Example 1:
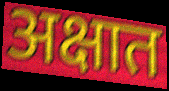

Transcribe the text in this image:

अक्षात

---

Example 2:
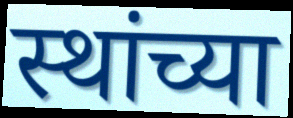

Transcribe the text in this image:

स्थांच्या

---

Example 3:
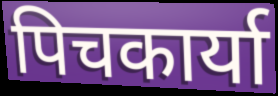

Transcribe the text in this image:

पिचकार्या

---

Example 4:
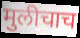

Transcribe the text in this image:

मुलीचाच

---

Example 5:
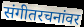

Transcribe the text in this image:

संगीतरचनांवर